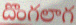
దొంగలాగ